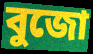
বুজো